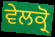
ਵੇਲਕ੍ਰੋ